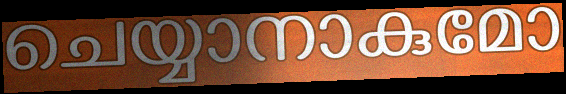
ചെയ്യാനാകുമോ